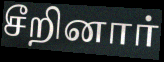
சீறினார்